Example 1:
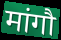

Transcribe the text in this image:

मांगौ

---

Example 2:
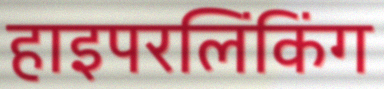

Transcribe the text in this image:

हाइपरलिंकिंग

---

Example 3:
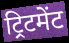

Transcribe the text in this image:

ट्रिटमेंट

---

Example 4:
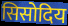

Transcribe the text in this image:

सिसोदिय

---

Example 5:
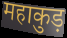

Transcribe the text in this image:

महाकुड़